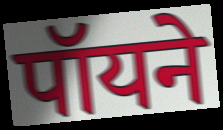
पॉयने